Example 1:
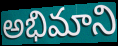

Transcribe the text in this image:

అభిమాని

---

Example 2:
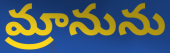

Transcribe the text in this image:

మ్రానును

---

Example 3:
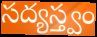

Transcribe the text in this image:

సద్యస్త్వం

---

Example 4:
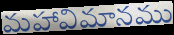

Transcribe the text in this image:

మహావిమానము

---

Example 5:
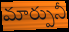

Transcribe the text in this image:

మార్పునీ